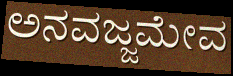
ಅನವಜ್ಜಮೇವ